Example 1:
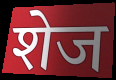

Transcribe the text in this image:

शेज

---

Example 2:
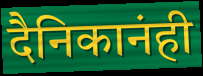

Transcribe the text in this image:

दैनिकानंही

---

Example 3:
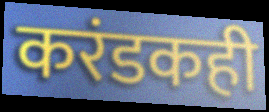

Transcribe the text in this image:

करंडकही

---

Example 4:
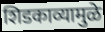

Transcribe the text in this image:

शिडकाव्यामुळे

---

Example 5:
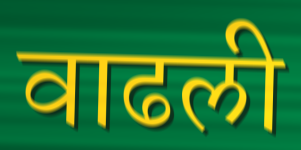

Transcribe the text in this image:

वाढली